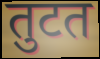
तुटत